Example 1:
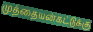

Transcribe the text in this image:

முத்தையன்கட்டுக்கு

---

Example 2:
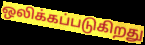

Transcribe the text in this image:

ஒலிக்கப்படுகிறது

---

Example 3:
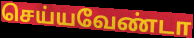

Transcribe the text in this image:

செய்யவேண்டா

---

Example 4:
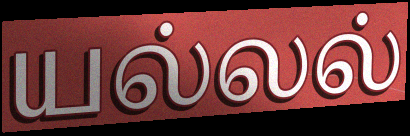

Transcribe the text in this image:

யல்லல்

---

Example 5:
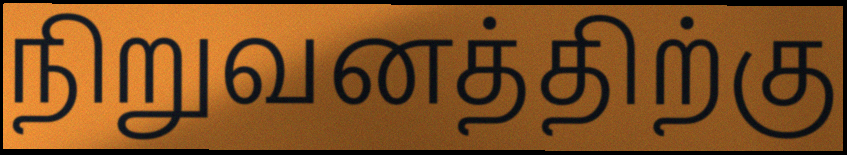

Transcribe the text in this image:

நிறுவனத்திற்கு